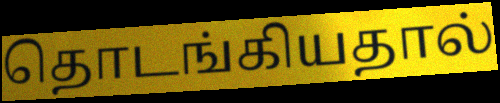
தொடங்கியதால்